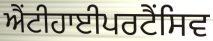
ਐਂਟੀਹਾਈਪਰਟੈਂਸਿਵ